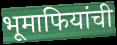
भूमाफियांची